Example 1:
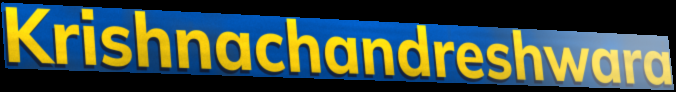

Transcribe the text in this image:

Krishnachandreshwara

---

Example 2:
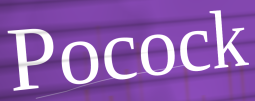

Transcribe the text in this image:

Pocock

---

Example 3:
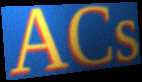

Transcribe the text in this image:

ACs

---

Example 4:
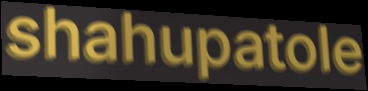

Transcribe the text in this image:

shahupatole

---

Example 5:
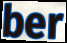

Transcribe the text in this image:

ber